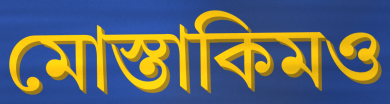
মোস্তাকিমও